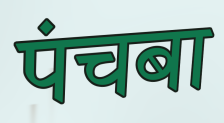
पंचबा